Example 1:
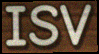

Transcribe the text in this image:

ISV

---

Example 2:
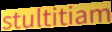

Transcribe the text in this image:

stultitiam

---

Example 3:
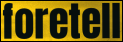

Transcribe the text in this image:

foretell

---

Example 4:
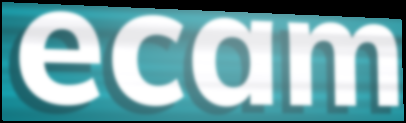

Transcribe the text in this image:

ecam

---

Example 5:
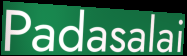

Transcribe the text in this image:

Padasalai